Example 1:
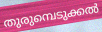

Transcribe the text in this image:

തുരുമ്പെടുക്കൽ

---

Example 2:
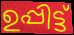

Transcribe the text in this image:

ഉപ്പിട്ട്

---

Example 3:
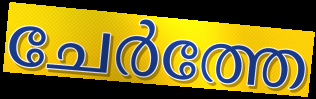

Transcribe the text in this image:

ചേർത്തേ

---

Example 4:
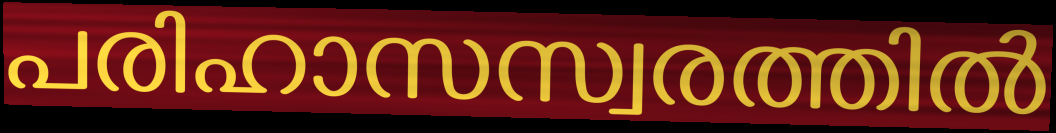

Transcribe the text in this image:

പരിഹാസസ്വരത്തിൽ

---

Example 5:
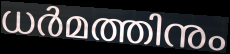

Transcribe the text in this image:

ധർമത്തിനും